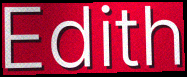
Edith